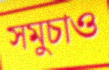
সমুচাও